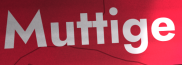
Muttige